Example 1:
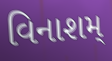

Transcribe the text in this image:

વિનાશમ્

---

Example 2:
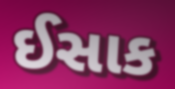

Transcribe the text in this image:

ઈસાક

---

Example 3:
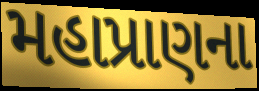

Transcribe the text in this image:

મહાપ્રાણના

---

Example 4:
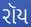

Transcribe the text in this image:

રૉય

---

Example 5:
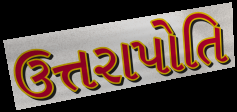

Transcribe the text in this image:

ઉત્તરાપોતિ